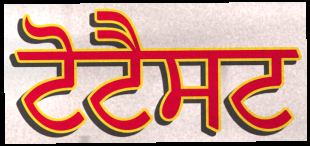
ਟੋਟੈਸਟ